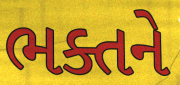
ભક્તને